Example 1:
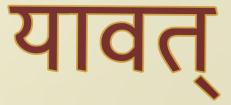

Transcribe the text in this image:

यावत्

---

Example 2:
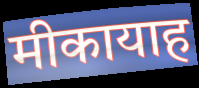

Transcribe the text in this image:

मीकायाह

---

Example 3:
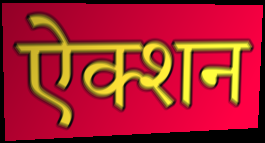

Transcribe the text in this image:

ऐक्शन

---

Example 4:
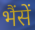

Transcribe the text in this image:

भैंसें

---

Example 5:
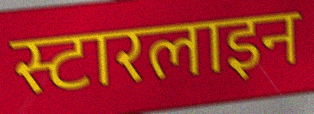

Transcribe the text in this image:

स्टारलाइन